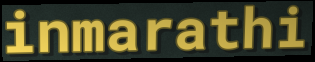
inmarathi